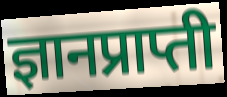
ज्ञानप्राप्ती